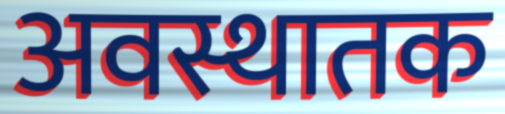
अवस्थातक